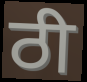
ठी